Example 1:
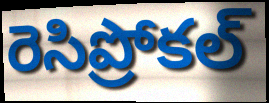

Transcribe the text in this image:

రెసిప్రోకల్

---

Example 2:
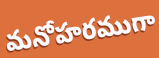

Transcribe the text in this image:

మనోహరముగా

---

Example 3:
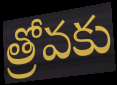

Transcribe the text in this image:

త్రోవకు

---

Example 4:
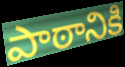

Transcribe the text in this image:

పాఠానికి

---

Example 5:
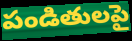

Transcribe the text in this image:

పండితులపై